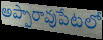
అప్పారావుపేటలో